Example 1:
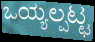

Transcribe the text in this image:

ಒಯ್ಯಲ್ಪಟ್ಟ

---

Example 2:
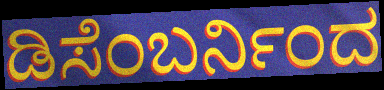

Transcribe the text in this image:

ಡಿಸೆಂಬರ್ನಿಂದ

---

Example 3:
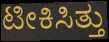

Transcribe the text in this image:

ಟೀಕಿಸಿತ್ತು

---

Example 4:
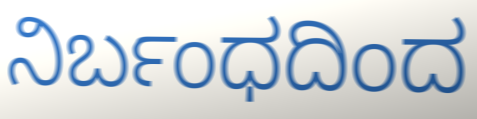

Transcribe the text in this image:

ನಿರ್ಬಂಧದಿಂದ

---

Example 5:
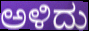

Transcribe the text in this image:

ಅಳಿದು